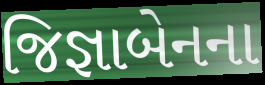
જિજ્ઞાબેનના